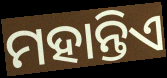
ମହାନ୍ତିଏ